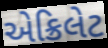
એક્રિલેટ